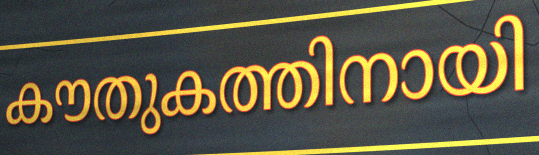
കൗതുകത്തിനായി